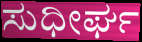
ಸುಧೀರ್ಘ